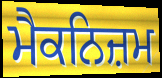
ਮੈਕਨਿਜ਼ਮ